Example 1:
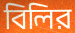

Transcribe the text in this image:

বিলির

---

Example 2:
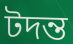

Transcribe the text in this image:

টদন্ত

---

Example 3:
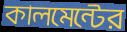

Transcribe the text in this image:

কালমেন্টের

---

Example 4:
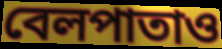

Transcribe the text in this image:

বেলপাতাও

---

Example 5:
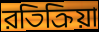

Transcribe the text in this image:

রতিক্রিয়া